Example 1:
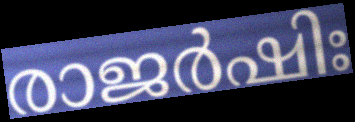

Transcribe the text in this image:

രാജർഷിഃ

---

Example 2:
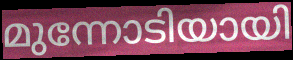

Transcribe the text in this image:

മുന്നോടിയായി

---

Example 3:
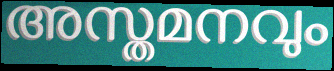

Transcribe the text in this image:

അസ്തമനവും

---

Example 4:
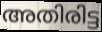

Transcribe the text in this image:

അതിരിട്ട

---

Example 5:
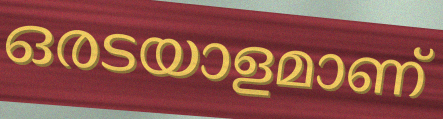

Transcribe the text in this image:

ഒരടയാളമാണ്